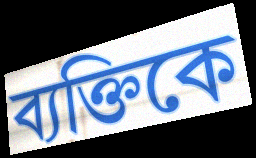
ব্যক্তিকে